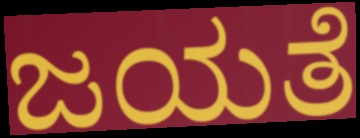
ಜಯತೆ